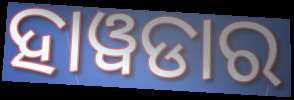
ହାୱଡାର